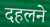
दहलने